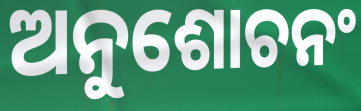
ଅନୁଶୋଚନଂ